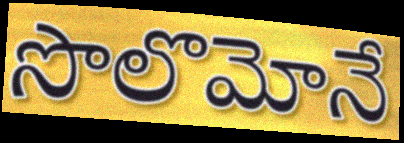
సొలొమోనే